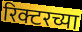
रिक्टरच्या